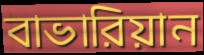
বাভারিয়ান